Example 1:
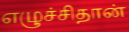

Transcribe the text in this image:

எழுச்சிதான்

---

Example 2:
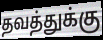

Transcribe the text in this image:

தவத்துக்கு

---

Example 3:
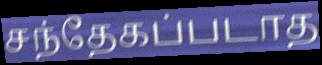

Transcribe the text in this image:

சந்தேகப்படாத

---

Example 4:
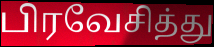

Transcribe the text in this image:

பிரவேசித்து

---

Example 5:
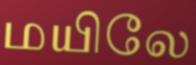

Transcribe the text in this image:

மயிலே